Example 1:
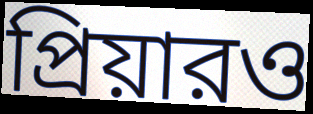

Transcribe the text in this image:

প্রিয়ারও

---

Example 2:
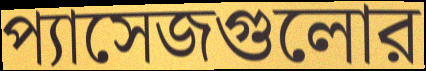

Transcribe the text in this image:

প্যাসেজগুলোর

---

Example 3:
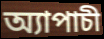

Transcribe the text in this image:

অ্যাপাচী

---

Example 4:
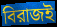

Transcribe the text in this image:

বিরাজই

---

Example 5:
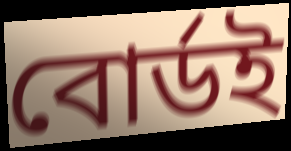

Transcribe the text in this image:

বোর্ডই